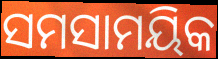
ସମସାମୟିକ